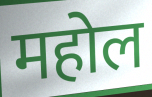
महोल